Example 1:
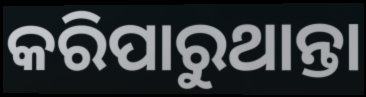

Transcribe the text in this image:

କରିପାରୁଥାନ୍ତା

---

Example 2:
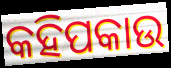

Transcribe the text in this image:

କହିପକାଉ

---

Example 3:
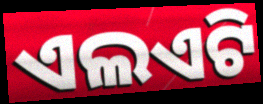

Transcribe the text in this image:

ଏଲଏଟି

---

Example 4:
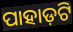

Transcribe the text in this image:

ପାହାଡ଼ଟି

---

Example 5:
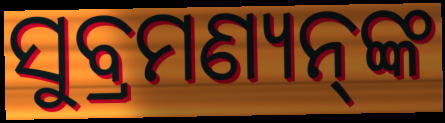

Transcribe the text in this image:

ସୁବ୍ରମଣ୍ୟନ୍‌ଙ୍କ